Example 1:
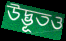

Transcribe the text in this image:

উদ্ভূতও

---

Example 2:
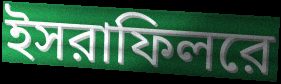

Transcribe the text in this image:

ইসরাফিলরে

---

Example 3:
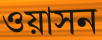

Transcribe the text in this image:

ওয়াসন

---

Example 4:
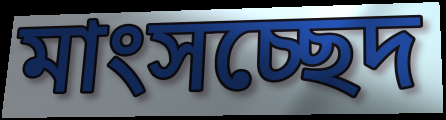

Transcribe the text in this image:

মাংসচ্ছেদ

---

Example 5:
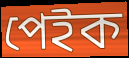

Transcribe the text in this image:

পেইক